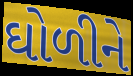
ઘોળીને